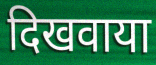
दिखवाया